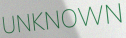
UNKNOWN